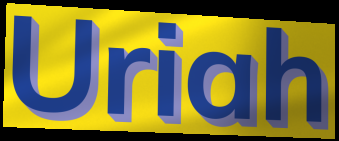
Uriah